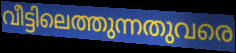
വീട്ടിലെത്തുന്നതുവരെ